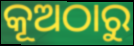
କୂଅଠାରୁ